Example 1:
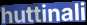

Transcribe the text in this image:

huttinali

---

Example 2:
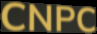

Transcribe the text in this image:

CNPC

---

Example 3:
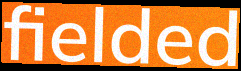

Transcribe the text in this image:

fielded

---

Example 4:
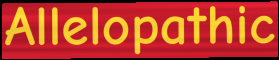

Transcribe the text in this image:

Allelopathic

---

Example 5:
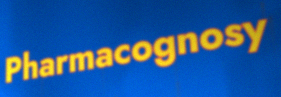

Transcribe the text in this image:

Pharmacognosy